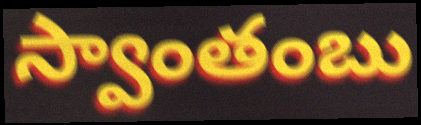
స్వాంతంబు